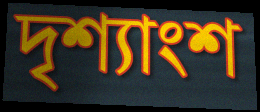
দৃশ্যাংশ